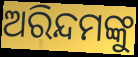
ଅରିନ୍ଦମଙ୍କୁ